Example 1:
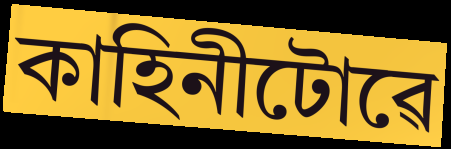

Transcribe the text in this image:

কাহিনীটোৱে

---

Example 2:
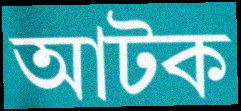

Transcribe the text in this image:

আটক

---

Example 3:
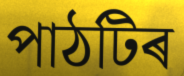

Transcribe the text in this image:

পাঠটিৰ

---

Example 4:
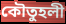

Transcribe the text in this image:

কৌতুহলী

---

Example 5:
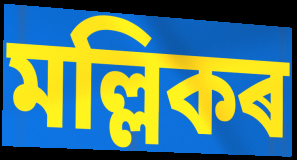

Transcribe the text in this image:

মল্লিকৰ